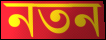
নতন